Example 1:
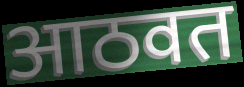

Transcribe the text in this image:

आठवत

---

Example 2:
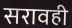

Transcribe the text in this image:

सरावही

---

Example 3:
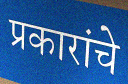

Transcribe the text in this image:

प्रकारांचे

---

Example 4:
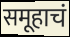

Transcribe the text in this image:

समूहाचं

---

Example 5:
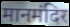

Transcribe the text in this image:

मानमंदिर